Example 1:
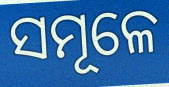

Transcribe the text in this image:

ସମୂଳେ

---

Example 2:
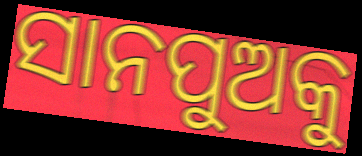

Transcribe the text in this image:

ସାନପୁଅକୁ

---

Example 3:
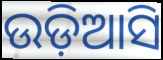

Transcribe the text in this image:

ଉଡ଼ିଆସି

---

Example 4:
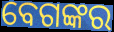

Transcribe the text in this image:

ବେଗଙ୍କର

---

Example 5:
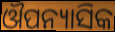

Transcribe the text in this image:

ଔପନ୍ୟାସିକ